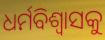
ଧର୍ମବିଶ୍ଵାସକୁ